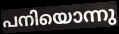
പനിയൊന്നു